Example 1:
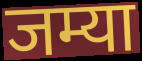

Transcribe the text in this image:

जम्या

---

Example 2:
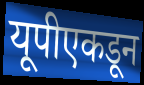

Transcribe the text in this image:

यूपीएकडून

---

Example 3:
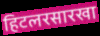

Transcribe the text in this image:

हिटलरसारखा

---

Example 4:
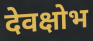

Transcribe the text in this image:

देवक्षोभ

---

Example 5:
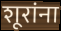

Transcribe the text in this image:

शूरांना